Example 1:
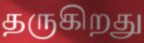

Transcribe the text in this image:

தருகிறது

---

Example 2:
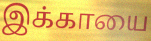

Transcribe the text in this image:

இக்காயை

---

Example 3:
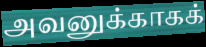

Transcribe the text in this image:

அவனுக்காகக்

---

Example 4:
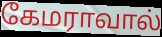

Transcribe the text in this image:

கேமராவால்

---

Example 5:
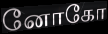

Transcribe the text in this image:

னோகோ